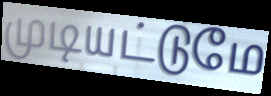
முடியட்டுமே